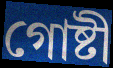
গোষ্টী